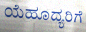
ಯೆಹೂದ್ಯರಿಗೆ